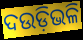
ଦଉଡ଼ିଭଳି